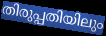
തിരുപ്പതിയിലും